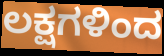
ಲಕ್ಷಗಳಿಂದ